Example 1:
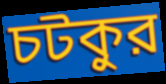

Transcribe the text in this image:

চটকুর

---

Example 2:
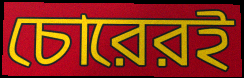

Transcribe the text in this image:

চোরেরই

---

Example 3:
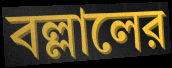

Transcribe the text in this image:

বল্লালের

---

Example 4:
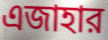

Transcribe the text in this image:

এজাহার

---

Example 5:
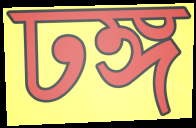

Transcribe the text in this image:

ঢঙ্গ